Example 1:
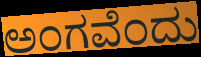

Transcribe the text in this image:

ಅಂಗವೆಂದು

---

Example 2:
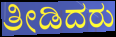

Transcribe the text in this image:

ತೀಡಿದರು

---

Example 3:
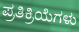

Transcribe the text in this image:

ಪ್ರತಿಕ್ರಿಯೆಗಳು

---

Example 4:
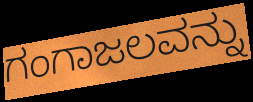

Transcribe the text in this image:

ಗಂಗಾಜಲವನ್ನು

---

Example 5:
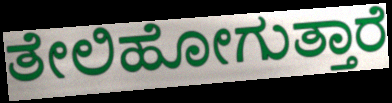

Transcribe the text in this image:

ತೇಲಿಹೋಗುತ್ತಾರೆ